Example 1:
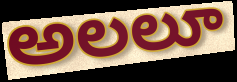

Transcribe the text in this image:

అలలూ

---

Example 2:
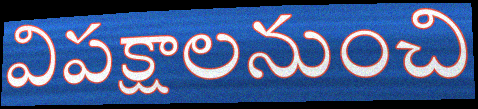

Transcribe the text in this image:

విపక్షాలనుంచి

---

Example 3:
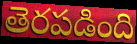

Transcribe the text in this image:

తెరపడింది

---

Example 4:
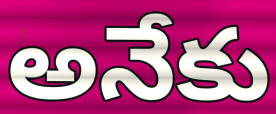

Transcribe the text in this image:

అనేకు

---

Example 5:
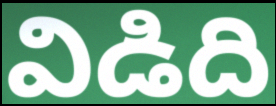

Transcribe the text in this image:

విడిది